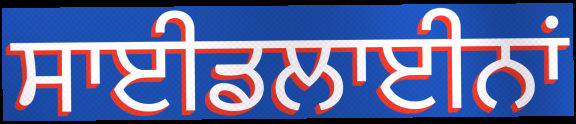
ਸਾਈਡਲਾਈਨਾਂ